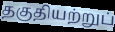
தகுதியற்றுப்